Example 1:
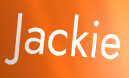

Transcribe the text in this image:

Jackie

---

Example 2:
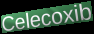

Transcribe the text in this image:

Celecoxib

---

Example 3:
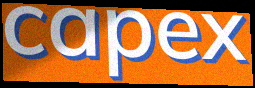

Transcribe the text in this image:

capex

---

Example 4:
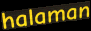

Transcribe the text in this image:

halaman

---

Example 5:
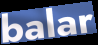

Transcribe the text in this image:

balar